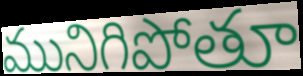
మునిగిపోతూ